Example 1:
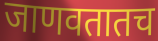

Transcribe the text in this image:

जाणवतातच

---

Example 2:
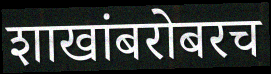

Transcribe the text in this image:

शाखांबरोबरच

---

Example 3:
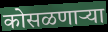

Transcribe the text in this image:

कोसळणार्‍या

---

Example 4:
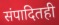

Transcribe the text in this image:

संपादितही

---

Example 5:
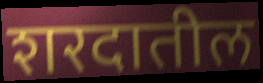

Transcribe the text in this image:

शरदातील